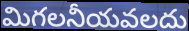
మిగలనీయవలదు